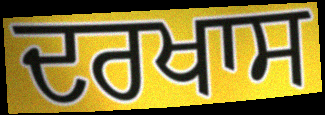
ਦਰਖਾਸ